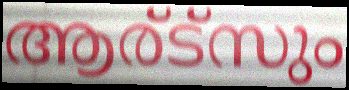
ആര്ട്സും